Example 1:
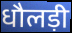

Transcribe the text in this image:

धौलड़ी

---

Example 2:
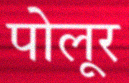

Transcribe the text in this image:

पोलूर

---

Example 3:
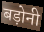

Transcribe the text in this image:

बड़ोनी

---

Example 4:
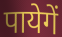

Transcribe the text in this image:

पायेगें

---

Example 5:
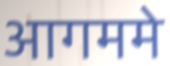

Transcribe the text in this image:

आगममे